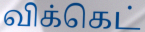
விக்கெட்